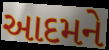
આદમને